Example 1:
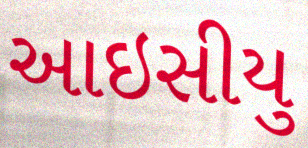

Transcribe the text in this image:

આઇસીયુ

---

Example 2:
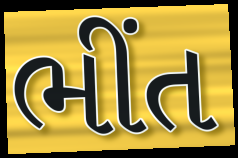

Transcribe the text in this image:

ભીંત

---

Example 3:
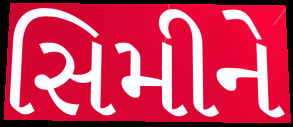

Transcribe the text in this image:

સિમીને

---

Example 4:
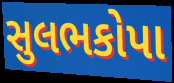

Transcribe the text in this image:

સુલભકોપા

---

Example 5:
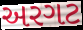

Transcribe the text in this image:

અરગટ